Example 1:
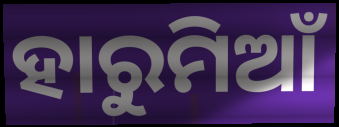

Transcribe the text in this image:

ହାରୁମିଆଁ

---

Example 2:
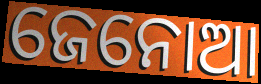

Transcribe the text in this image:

ଜେନୋଆ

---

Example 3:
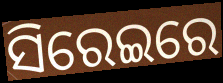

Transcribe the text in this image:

ସିରେଇରେ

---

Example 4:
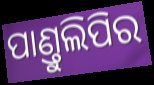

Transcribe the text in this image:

ପାଣ୍ତୁଲିପିର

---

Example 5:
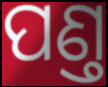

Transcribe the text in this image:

ପଣ୍ତ